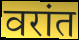
वरांत